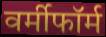
वर्मीफॉर्म